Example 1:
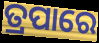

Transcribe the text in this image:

ତ୍ରପାରେ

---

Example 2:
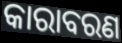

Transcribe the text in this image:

କାରାବରଣ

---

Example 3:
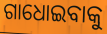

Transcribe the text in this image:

ଗାଧୋଇବାକୁ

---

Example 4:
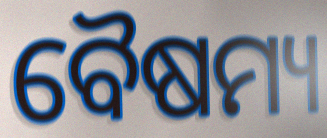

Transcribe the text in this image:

ବୈଷମ୍ୟ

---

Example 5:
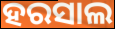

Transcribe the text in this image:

ହରସାଲ